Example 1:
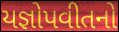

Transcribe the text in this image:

યજ્ઞોપવીતનો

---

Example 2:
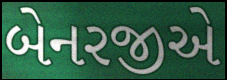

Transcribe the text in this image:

બેનરજીએ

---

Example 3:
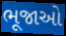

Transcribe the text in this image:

ભૂજાઓ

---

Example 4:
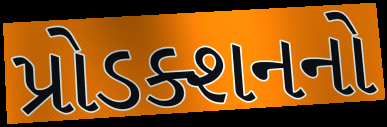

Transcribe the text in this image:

પ્રોડક્શનનો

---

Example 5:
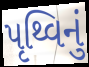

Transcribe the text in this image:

પૃથ્વિનું